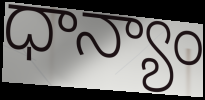
ధాన్యాం